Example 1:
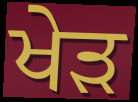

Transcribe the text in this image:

ਖੇੜ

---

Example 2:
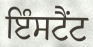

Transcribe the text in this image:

ਇੰਸਟੈਂਟ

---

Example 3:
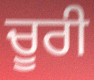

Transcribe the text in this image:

ਚੂਰੀ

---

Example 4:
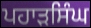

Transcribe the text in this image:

ਪਹਾੜਸਿੰਘ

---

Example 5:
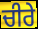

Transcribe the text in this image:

ਚੀਰੇ